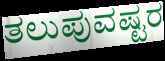
ತಲುಪುವಷ್ಟರ